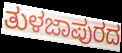
ತುಳಜಾಪುರದ